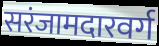
सरंजामदारवर्ग